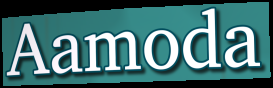
Aamoda